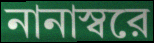
নানাস্বরে